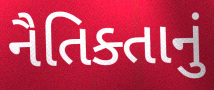
નૈતિક્તાનું